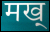
मख्